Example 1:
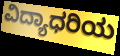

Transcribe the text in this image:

ವಿದ್ಯಾಧರಿಯ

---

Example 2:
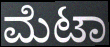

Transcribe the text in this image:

ಮೆಟಾ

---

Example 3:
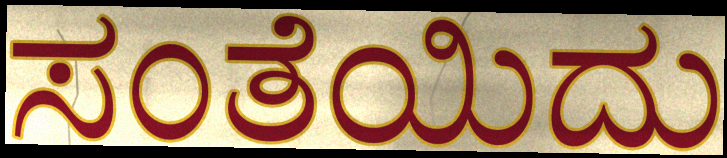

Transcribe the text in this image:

ಸಂತೆಯಿದು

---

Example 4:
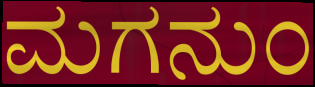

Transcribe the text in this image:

ಮಗನುಂ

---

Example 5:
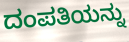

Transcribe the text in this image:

ದಂಪತಿಯನ್ನು